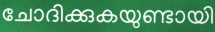
ചോദിക്കുകയുണ്ടായി